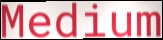
Medium